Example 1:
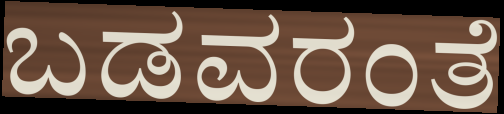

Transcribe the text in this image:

ಬಡವರಂತೆ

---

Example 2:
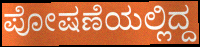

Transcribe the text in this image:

ಪೋಷಣೆಯಲ್ಲಿದ್ದ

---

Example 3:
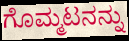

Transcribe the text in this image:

ಗೊಮ್ಮಟನನ್ನು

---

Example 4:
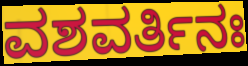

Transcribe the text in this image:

ವಶವರ್ತಿನಃ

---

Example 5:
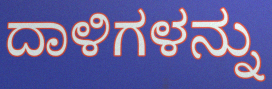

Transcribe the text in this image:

ದಾಳಿಗಳನ್ನು